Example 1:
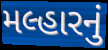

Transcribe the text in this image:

મલ્હારનું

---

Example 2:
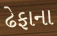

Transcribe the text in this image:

ઢેફાના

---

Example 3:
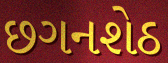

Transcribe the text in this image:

છગનશેઠ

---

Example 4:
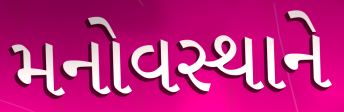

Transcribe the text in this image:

મનોવસ્થાને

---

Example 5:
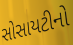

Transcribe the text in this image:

સોસાયટીનો